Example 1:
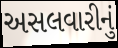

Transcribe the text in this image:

અસલવારીનું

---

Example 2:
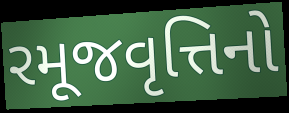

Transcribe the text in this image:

રમૂજવૃત્તિનો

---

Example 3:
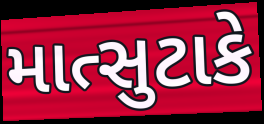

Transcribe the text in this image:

માત્સુટાકે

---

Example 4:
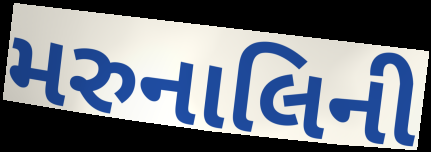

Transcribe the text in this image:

મરુનાલિની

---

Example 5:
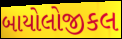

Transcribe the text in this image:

બાયોલોજીકલ